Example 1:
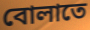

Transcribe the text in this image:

বোলাতে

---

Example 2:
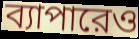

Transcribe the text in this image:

ব্যাপারেও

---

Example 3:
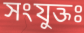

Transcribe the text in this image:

সংযুক্তঃ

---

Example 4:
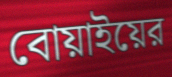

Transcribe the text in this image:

বোয়াইয়ের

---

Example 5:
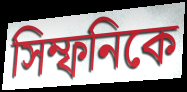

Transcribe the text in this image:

সিম্ফনিকে